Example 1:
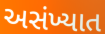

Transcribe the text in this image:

અસંખ્યાત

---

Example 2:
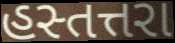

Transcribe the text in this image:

હસ્તત્તરા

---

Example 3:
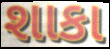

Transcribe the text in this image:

શાકા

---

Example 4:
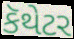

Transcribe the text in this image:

કૅથેટર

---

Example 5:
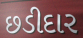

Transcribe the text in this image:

છડીદાર